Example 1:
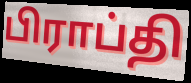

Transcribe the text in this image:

பிராப்தி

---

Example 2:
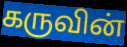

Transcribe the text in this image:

கருவின்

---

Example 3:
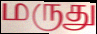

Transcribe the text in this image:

மருது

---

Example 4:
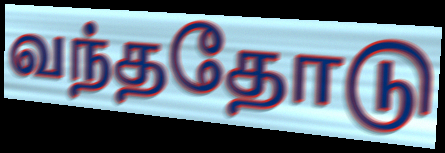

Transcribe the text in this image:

வந்ததோடு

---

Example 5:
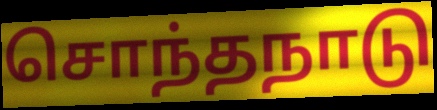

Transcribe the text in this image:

சொந்தநாடு